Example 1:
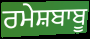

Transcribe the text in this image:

ਰਮੇਸ਼ਬਾਬੂ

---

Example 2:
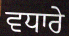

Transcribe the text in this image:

ਵਧਾਰੇ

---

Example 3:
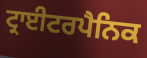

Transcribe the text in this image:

ਟ੍ਰਾਈਟਰਪੈਨਿਕ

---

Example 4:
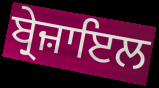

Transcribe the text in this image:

ਬ੍ਰੇਜ਼ਾਇਲ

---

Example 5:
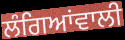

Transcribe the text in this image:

ਲੰਗਿਆਂਵਾਲੀ